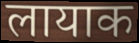
लायाक